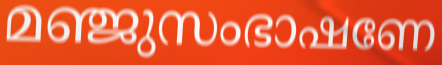
മഞ്ജുസംഭാഷണേ